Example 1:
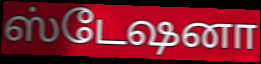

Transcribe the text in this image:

ஸ்டேஷனா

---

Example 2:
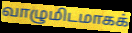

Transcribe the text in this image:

வாழுமிடமாகக்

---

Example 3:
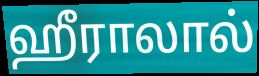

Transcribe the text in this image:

ஹீராலால்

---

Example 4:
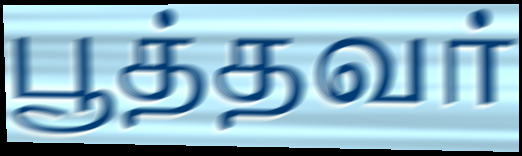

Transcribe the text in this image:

பூத்தவர்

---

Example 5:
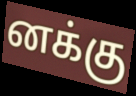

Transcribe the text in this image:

னக்கு